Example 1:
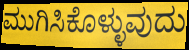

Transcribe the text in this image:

ಮುಗಿಸಿಕೊಳ್ಳುವುದು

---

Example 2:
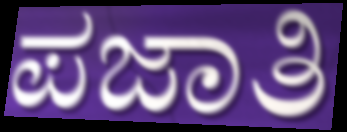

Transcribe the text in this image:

ಪಜಾತಿ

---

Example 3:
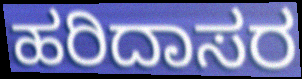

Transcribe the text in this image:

ಹರಿದಾಸರ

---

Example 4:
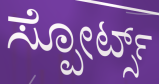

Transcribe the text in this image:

ಸ್ಪೋರ್ಟ್ಸ್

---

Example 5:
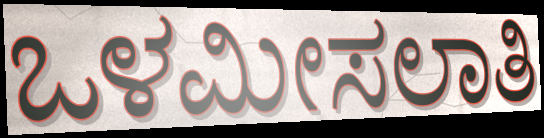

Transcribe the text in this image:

ಒಳಮೀಸಲಾತಿ